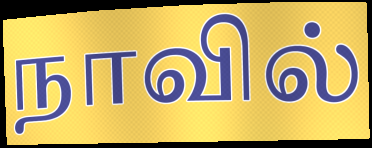
நாவில்